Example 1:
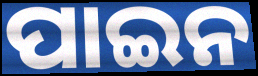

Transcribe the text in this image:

ପାଇନ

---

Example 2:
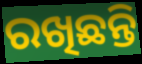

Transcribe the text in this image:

ରଖିଛନ୍ତି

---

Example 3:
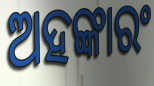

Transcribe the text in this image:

ଅହଙ୍କାରଂ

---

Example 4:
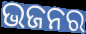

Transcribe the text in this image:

ଭଜନର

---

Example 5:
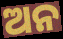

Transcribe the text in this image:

ଅନ